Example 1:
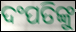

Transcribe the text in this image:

ଦଂପତିଙ୍କୁ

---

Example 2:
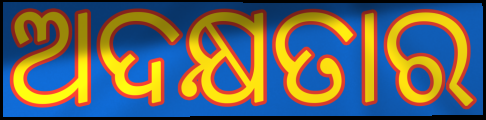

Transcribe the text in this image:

ଅଦକ୍ଷତାର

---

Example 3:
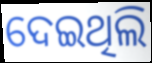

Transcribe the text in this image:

ଦେଇଥିଲି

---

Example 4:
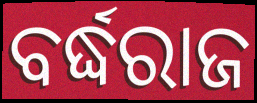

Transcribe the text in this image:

ବର୍ଦ୍ଧରାଜ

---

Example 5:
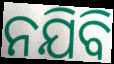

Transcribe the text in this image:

ନଯିବି